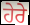
ਹੇਰੇ